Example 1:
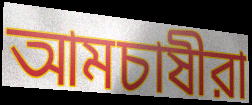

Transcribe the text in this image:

আমচাষীরা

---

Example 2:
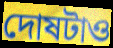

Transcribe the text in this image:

দোষটাও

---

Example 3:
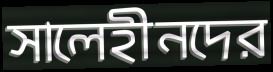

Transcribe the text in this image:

সালেহীনদের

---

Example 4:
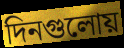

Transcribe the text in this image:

দিনগুলোয়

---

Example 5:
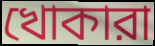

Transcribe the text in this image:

খোকারা